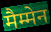
मैम्मेन